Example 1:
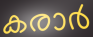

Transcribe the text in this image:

കരാർ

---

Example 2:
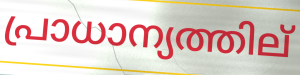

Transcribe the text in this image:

പ്രാധാന്യത്തില്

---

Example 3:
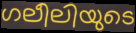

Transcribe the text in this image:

ഗലീലിയുടെ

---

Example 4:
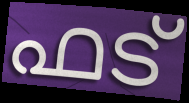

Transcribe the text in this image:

ഫട്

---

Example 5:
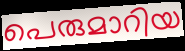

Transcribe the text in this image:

പെരുമാറിയ